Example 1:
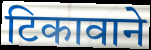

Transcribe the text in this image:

टिकावाने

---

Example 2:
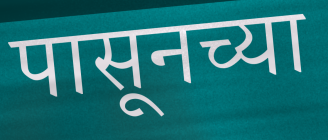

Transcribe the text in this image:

पासूनच्या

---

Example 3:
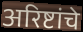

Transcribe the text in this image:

अरिष्टांचे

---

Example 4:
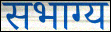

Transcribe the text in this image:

सभाग्य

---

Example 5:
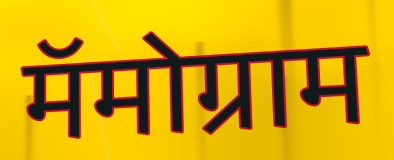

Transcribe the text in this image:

मॅमोग्राम